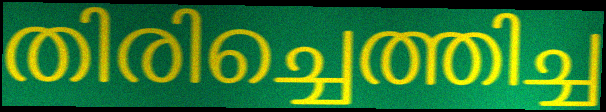
തിരിച്ചെത്തിച്ച